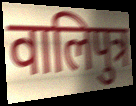
वालिपुत्र